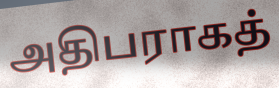
அதிபராகத்